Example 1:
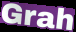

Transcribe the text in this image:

Grah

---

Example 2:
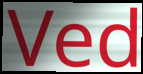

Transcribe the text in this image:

Ved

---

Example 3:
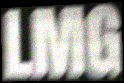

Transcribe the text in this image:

LMG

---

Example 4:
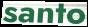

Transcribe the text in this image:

santo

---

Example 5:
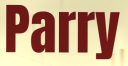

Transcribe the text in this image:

Parry